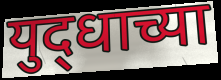
युद्धाच्या